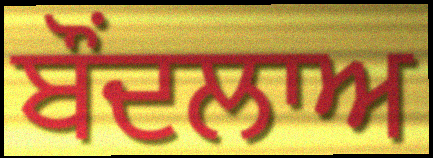
ਬੌਂਦਲਾਅ